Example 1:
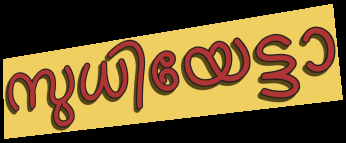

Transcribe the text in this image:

സുധിയേട്ടാ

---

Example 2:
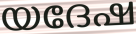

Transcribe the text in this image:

യദേഷ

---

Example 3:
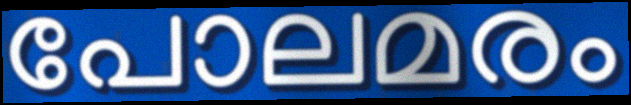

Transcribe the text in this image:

പോലമരം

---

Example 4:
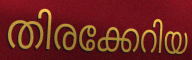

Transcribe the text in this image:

തിരക്കേറിയ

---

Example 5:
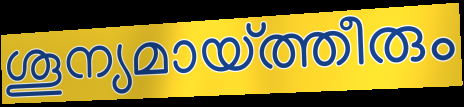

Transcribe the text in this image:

ശൂന്യമായ്ത്തീരും